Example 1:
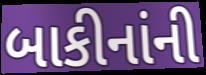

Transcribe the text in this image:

બાકીનાંની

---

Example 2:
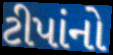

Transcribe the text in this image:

ટીપાંનો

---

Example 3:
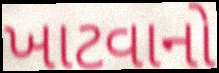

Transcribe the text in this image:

ખાટવાનો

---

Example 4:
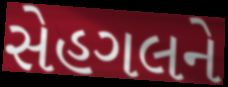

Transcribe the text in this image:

સેહગલને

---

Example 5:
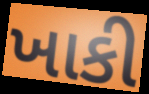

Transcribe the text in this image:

ખાકી